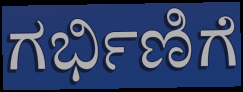
ಗರ್ಭಿಣಿಗೆ